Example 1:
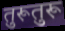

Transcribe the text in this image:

तुरूतुरू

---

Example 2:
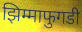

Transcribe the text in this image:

झिम्माफुगडी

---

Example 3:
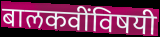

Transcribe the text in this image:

बालकवींविषयी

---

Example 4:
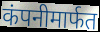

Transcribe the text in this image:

कंपनीमार्फत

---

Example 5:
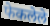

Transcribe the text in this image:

फेकलेले